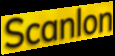
Scanlon